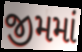
જીમમાં